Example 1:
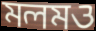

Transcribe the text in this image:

মলমও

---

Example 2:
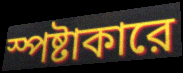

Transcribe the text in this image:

স্পষ্টাকারে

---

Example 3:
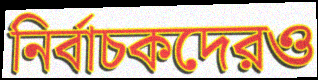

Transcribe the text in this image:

নির্বাচকদেরও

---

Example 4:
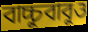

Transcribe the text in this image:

বাচ্চুবাবুও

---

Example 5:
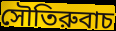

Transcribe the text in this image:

সৌতিরুবাচ